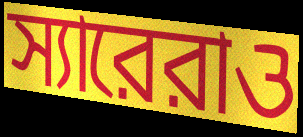
স্যারেরাও